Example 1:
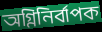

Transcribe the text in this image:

অগ্নিনিৰ্বাপক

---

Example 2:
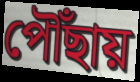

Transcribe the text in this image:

পৌঁছায়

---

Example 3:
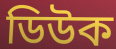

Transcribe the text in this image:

ডিউক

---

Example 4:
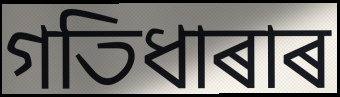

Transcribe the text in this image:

গতিধাৰাৰ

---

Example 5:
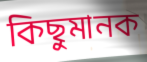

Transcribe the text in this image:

কিছুমানক